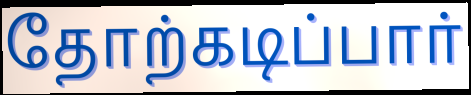
தோற்கடிப்பார்